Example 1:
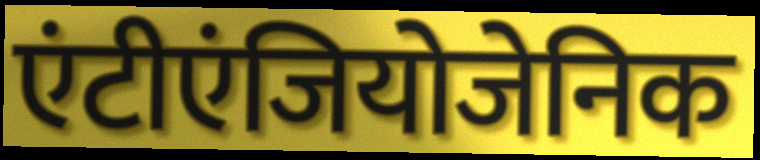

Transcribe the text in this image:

एंटीएंजियोजेनिक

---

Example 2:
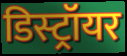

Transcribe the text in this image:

डिस्‍ट्रॉयर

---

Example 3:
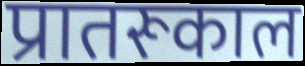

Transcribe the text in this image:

प्रातरूकाल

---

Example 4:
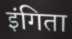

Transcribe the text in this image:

इंगिता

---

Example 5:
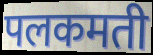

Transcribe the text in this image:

पलकमती